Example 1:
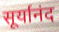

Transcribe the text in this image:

सूर्यानंद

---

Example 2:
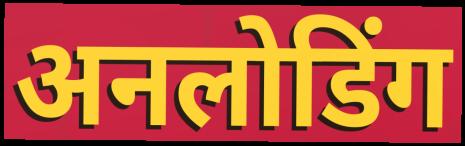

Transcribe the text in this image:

अनलोडिंग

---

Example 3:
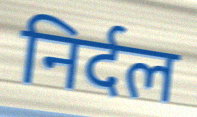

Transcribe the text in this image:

निर्दल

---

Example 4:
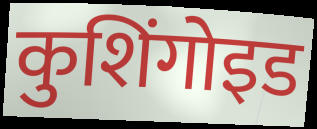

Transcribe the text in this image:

कुशिंगोइड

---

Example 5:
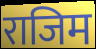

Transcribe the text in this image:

राजिम